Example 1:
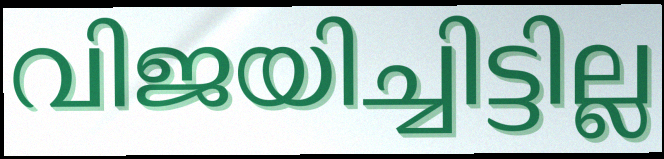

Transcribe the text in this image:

വിജയിച്ചിട്ടില്ല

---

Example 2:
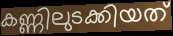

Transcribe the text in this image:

കണ്ണിലുടക്കിയത്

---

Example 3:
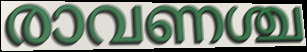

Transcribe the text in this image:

രാവണശ്ച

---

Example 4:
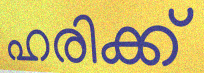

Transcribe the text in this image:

ഹരിക്ക്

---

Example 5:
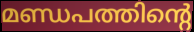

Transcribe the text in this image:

മണ്ഡപത്തിന്റെ